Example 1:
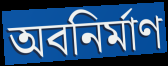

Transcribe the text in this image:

অবনির্মাণ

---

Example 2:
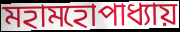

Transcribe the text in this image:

মহামহোপাধ্যায়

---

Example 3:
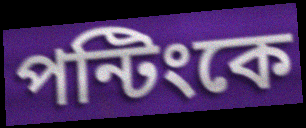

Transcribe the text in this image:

পন্টিংকে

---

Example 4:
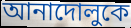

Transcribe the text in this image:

আনাদোলুকে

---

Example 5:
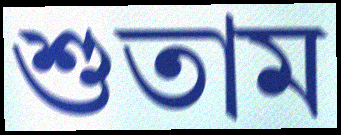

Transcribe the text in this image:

শুতাম